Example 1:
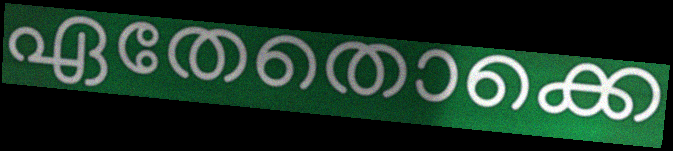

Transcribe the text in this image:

ഏതേതൊക്കെ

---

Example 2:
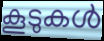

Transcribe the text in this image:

കൂടുകൾ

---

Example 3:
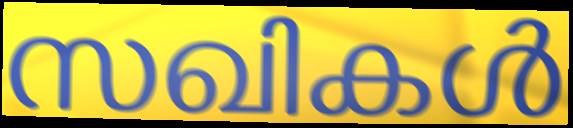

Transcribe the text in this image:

സഖികൾ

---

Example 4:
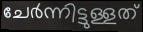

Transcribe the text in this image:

ചേർന്നിട്ടുള്ളത്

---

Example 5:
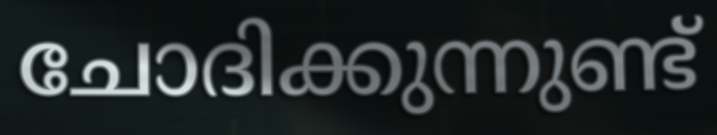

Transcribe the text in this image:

ചോദിക്കുന്നുണ്ട്